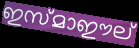
ഇസ്മാഈല്